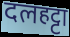
दलहट्टा